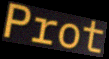
Prot